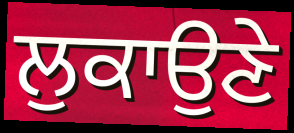
ਲੁਕਾਉਣੇ